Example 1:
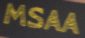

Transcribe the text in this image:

MSAA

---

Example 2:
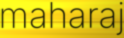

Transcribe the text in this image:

maharaj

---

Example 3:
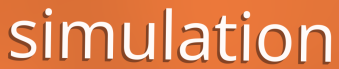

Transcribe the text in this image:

simulation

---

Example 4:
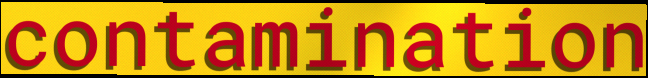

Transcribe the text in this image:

contamination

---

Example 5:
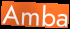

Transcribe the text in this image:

Amba